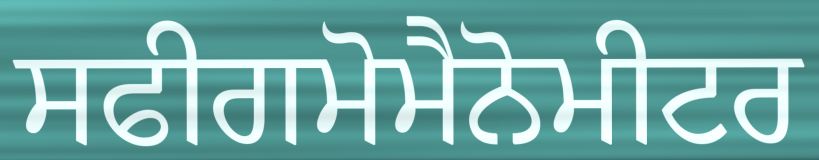
ਸਫੀਗਮੋਮੈਨੋਮੀਟਰ